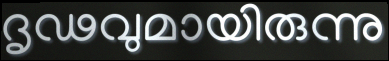
ദൃഢവുമായിരുന്നു